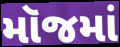
મૉજમાં